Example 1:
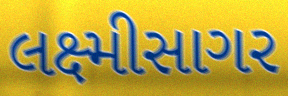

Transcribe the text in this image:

લક્ષ્મીસાગર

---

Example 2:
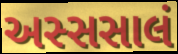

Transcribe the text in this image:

અસ્સસાલં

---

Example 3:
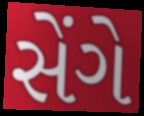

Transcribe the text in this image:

સેંગે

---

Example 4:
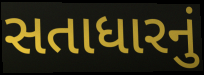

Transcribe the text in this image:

સતાધારનું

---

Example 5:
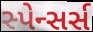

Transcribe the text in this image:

સ્પેન્સર્સ